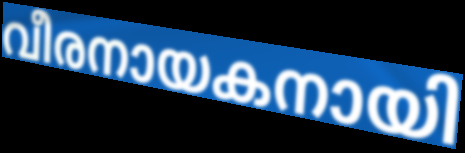
വീരനായകനായി